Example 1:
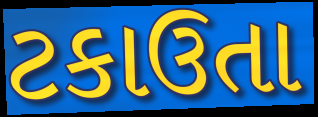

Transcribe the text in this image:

ટકાઉતા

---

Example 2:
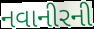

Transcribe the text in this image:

નવાનીરની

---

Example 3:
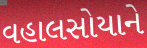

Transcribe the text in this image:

વહાલસોયાને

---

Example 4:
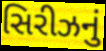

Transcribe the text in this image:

સિરીઝનું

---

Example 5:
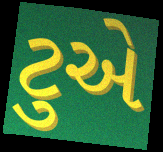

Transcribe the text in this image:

ટુએ